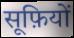
सूफ़ियों